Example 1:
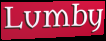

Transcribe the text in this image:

Lumby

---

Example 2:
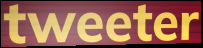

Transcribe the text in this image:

tweeter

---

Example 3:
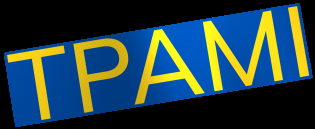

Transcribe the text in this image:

TPAMI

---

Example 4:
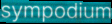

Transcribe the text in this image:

sympodium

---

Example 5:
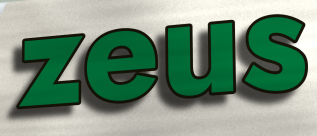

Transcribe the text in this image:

zeus